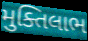
મુક્તિલાભ